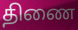
திணை